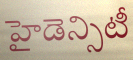
హైడెన్సిటీ